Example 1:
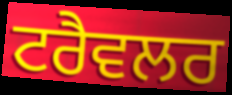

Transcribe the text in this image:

ਟਰੈਵਲਰ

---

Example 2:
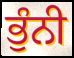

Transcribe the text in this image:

ਭੁੰਨੀ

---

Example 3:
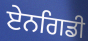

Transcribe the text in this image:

ਏਨਗਿਡੀ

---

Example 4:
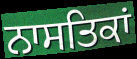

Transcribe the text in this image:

ਨਾਸਤਿਕਾਂ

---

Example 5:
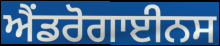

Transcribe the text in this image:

ਐਂਡਰੋਗਾਈਨਸ